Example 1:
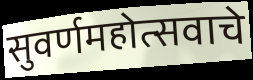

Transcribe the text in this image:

सुवर्णमहोत्सवाचे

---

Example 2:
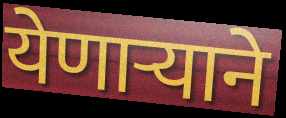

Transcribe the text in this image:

येणाऱ्याने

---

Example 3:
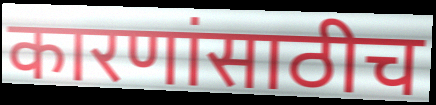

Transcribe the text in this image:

कारणांसाठीच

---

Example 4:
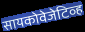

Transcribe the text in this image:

सायकोवेजेटिव्ह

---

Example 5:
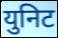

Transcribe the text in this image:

युनिट